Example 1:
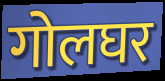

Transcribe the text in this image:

गोलघर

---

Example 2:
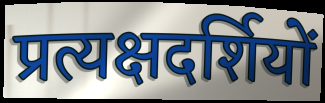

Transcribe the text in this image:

प्रत्यक्षदर्शियों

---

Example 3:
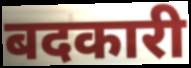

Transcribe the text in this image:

बदकारी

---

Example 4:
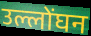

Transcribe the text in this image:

उल्लोंघन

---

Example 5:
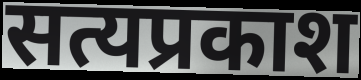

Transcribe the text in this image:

सत्यप्रकाश